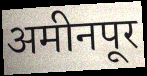
अमीनपूर